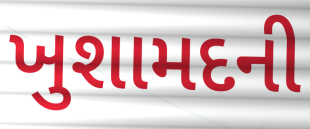
ખુશામદની